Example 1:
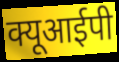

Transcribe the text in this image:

क्यूआईपी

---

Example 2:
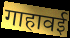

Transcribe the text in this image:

गाहावई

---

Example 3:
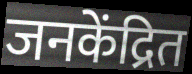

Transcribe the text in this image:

जनकेंद्रित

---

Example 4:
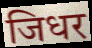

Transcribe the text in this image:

जिधर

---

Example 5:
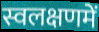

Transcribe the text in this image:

स्वलक्षणमें